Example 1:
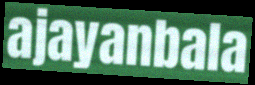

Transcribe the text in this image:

ajayanbala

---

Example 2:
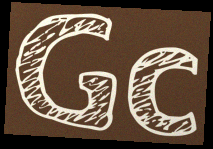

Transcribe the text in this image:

Gc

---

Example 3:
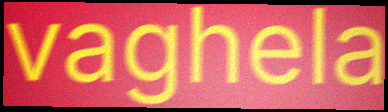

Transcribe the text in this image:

vaghela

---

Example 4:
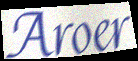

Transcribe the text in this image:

Aroer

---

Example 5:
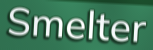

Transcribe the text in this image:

Smelter